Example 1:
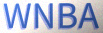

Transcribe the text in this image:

WNBA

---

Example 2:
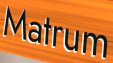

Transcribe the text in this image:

Matrum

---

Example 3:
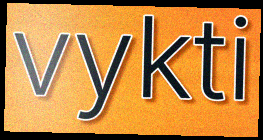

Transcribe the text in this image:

vykti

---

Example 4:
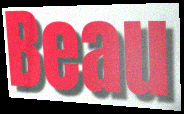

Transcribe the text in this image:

Beau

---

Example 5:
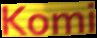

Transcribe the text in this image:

Komi